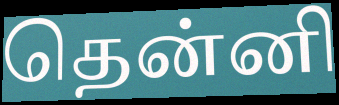
தென்னி